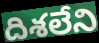
దిశలేని